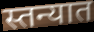
स्तन्यात